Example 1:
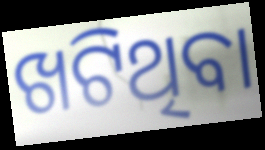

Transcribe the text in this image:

ଖଟିଥିବା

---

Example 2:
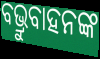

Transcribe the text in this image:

ବଭ୍ରୁବାହନଙ୍କ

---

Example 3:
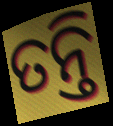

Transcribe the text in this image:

ତନ୍ତି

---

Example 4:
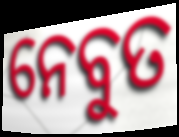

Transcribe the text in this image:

ନେବୁତ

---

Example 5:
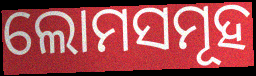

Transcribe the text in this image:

ଲୋମସମୂହ